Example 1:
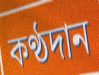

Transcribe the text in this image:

কণ্ঠদান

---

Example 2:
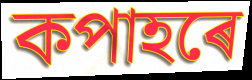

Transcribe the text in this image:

কপাহৰে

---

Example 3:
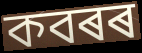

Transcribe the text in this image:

কবৰৰ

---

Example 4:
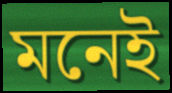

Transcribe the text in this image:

মনেই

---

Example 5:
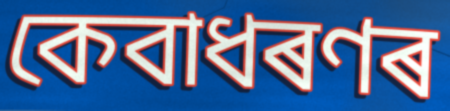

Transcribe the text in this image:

কেবাধৰণৰ